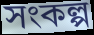
সংকল্প